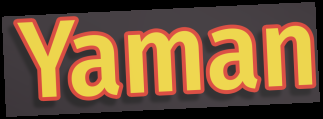
Yaman